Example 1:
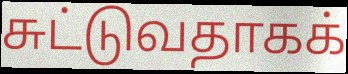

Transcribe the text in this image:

சுட்டுவதாகக்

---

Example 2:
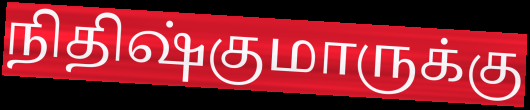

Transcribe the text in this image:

நிதிஷ்குமாருக்கு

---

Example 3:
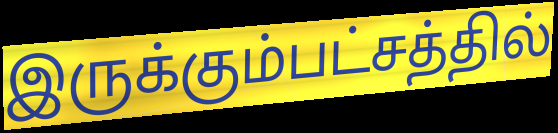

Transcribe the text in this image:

இருக்கும்பட்சத்தில்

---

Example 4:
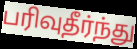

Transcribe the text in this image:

பரிவுதீர்ந்து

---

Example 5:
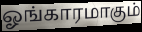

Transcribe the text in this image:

ஓங்காரமாகும்